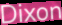
Dixon